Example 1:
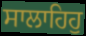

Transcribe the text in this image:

ਸਾਲਾਹਿਹੁ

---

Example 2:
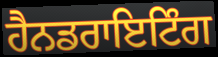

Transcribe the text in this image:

ਹੈਨਡਰਾਇਟਿੰਗ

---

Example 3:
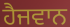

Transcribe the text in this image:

ਹੈਜਵਾਨ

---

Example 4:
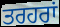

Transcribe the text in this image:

ਤਰਹਰਾਂ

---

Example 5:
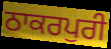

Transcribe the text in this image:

ਠਾਕਰਪੁਰੀ